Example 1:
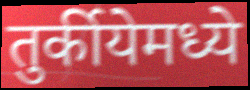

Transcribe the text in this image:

तुर्कीयेमध्ये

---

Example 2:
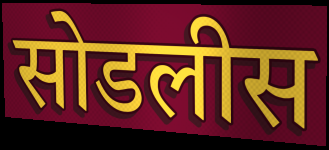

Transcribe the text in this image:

सोडलीस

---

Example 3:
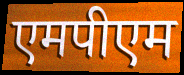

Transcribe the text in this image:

एमपीएम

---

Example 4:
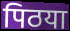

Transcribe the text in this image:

पिठया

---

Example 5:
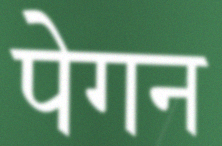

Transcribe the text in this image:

पेगन